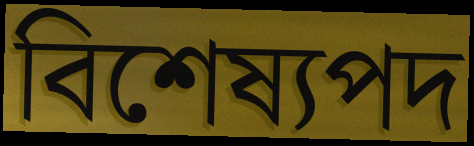
বিশেষ্যপদ